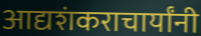
आद्यशंकराचार्यांनी